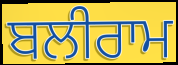
ਬਲੀਰਾਮ